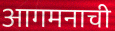
आगमनाची